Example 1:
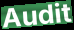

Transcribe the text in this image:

Audit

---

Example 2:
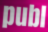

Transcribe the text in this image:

publ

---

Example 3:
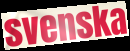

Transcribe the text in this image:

svenska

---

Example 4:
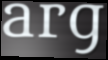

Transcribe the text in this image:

arg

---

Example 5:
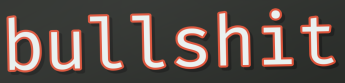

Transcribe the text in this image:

bullshit